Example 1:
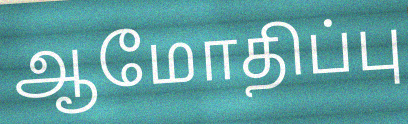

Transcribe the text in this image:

ஆமோதிப்பு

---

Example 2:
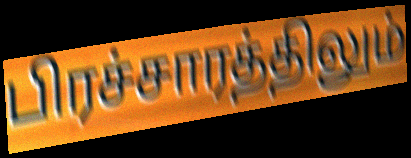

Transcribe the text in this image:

பிரச்சாரத்திலும்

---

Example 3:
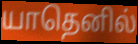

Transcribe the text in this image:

யாதெனில்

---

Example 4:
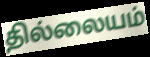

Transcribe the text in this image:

தில்லையம்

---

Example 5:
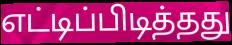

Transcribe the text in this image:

எட்டிப்பிடித்தது